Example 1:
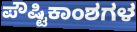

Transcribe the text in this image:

ಪೌಷ್ಟಿಕಾಂಶಗಳ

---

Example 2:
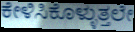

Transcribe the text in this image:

ಕೇಳಿಸಿಕೊಳ್ಳುತ್ತಲೇ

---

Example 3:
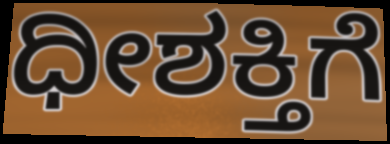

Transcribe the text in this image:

ಧೀಶಕ್ತಿಗೆ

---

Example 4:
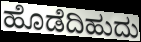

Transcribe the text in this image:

ಹೊಡೆದಿಹುದು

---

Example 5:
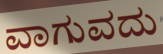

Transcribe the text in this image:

ವಾಗುವದು